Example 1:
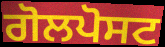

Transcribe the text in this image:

ਗੋਲਪੋਸਟ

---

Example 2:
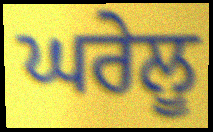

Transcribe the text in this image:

ਘਰੇਲੂ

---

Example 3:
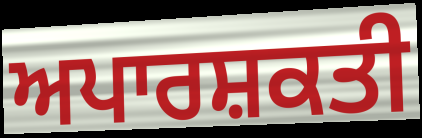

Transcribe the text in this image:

ਅਪਾਰਸ਼ਕਤੀ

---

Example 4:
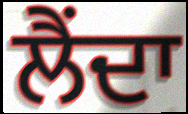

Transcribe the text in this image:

ਲੈਂਦਾ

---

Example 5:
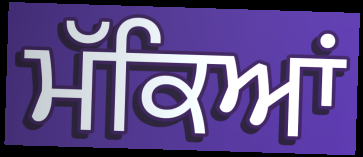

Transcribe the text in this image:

ਮੱਕਿਆਂ